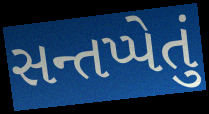
સન્તપ્પેતું